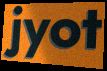
jyot